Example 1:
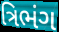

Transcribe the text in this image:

ત્રિભંગ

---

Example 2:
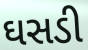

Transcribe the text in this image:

ઘસડી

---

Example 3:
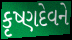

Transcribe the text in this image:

કૃષ્ણદેવને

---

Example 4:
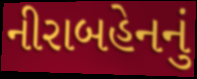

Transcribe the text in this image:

નીરાબહેનનું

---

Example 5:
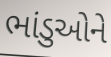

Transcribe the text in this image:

ભાંડુઓને